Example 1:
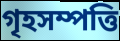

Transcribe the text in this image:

গৃহসম্পত্তি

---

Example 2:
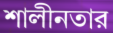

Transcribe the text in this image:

শালীনতার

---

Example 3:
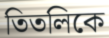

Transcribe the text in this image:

তিতলিকে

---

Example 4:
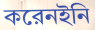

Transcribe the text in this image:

করেনইনি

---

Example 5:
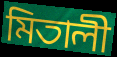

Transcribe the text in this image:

মিতালী